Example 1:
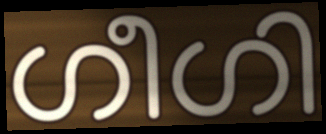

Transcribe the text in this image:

ഗീഗി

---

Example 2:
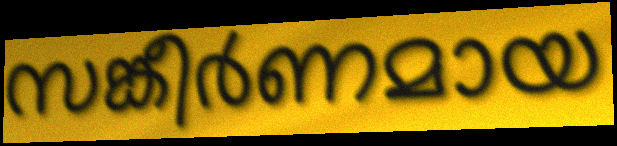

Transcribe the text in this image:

സങ്കീർണമായ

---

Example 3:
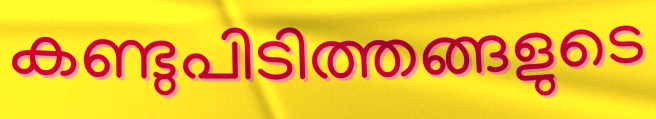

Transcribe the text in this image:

കണ്ടുപിടിത്തങ്ങളുടെ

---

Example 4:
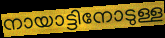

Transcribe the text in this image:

നായാട്ടിനോടുള്ള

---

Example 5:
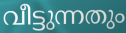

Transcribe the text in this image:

വീട്ടുന്നതും